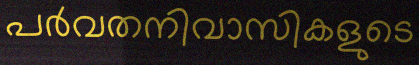
പർവതനിവാസികളുടെ